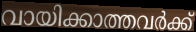
വായിക്കാത്തവർക്ക്